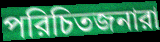
পরিচিতজনারা